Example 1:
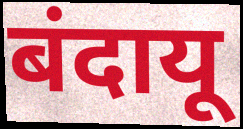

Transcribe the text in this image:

बंदायू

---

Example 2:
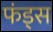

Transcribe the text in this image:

फंड्स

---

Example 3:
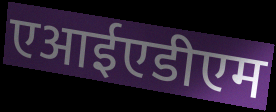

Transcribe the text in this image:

एआईएडीएम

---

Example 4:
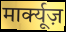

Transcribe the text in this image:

मार्क्यूज़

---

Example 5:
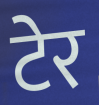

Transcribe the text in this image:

टेर